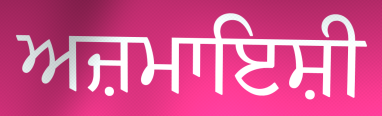
ਅਜ਼ਮਾਇਸ਼ੀ